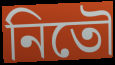
নিতৌ